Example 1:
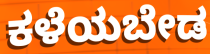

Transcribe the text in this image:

ಕಳೆಯಬೇಡ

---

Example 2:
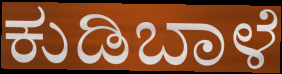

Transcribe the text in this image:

ಕುಡಿಬಾಳೆ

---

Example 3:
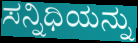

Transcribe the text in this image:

ಸನ್ನಿಧಿಯನ್ನು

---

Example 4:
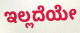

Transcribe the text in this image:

ಇಲ್ಲದೆಯೇ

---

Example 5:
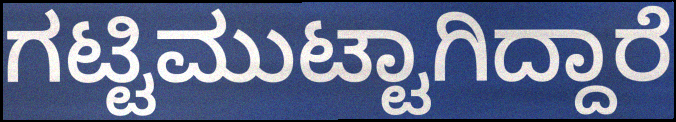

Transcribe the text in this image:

ಗಟ್ಟಿಮುಟ್ಟಾಗಿದ್ದಾರೆ